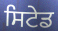
ਸਿਟੇਡ